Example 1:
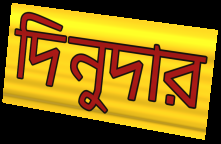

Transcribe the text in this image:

দিনুদার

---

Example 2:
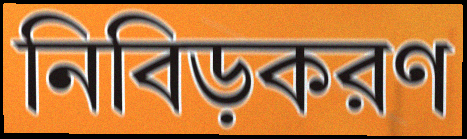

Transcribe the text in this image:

নিবিড়করণ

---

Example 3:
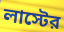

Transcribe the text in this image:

লাস্টের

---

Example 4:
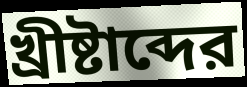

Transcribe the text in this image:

খ্রীষ্টাব্দের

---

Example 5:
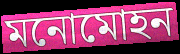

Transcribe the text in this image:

মনোমোহন